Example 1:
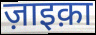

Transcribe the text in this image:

ज़ाइक़ा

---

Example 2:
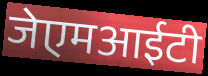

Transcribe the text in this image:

जेएमआईटी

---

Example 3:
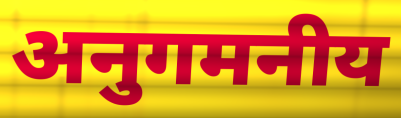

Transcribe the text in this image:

अनुगमनीय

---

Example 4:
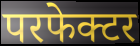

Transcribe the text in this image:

परफेक्टर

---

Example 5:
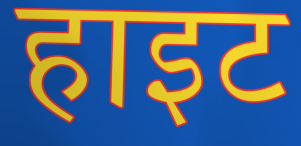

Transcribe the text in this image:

हाइट